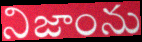
నిజాంను